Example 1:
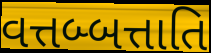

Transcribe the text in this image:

વત્તબ્બત્તાતિ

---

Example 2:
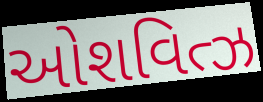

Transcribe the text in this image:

ઓશવિત્ઝ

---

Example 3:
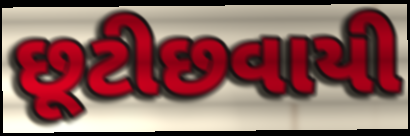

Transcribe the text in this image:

છૂટીછવાયી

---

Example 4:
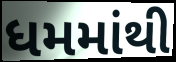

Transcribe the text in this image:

ધમમાંથી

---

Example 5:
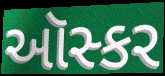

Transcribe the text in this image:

ઑસ્કર